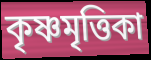
কৃষ্ণমৃত্তিকা